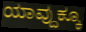
ಯಾವ್ದುಕ್ಕೂ